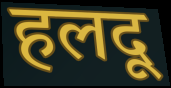
हलदू